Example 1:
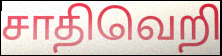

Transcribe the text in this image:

சாதிவெறி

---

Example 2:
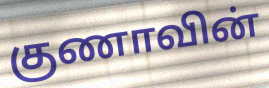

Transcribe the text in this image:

குணாவின்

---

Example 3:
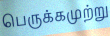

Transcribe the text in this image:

பெருக்கமுற்று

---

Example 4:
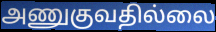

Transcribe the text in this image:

அணுகுவதில்லை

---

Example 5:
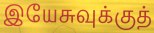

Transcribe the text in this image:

இயேசுவுக்குத்